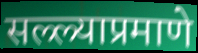
सल्ल्याप्रमाणे